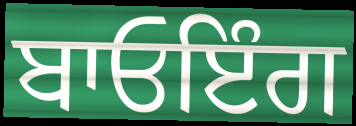
ਬਾਓਇੰਗ